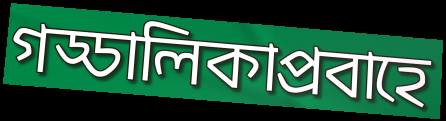
গড্ডালিকাপ্রবাহে